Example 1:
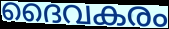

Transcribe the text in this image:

ദൈവകരം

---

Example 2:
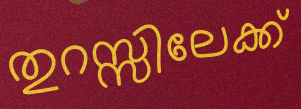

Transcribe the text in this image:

തുറസ്സിലേക്ക്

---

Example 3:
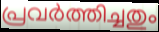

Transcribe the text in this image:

പ്രവർത്തിച്ചതും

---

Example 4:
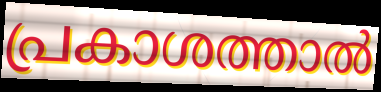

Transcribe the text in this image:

പ്രകാശത്താൽ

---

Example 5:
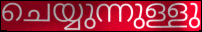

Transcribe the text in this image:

ചെയ്യുന്നുള്ളു